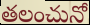
తలంచునో